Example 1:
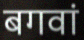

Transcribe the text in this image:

बगवां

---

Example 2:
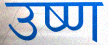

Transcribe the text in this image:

उष्ण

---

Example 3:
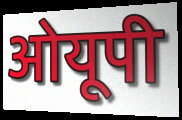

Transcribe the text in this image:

ओयूपी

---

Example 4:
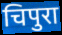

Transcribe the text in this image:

चिपुरा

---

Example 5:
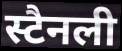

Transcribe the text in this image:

स्टैनली